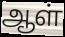
ஆள்